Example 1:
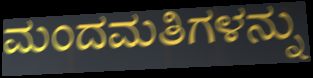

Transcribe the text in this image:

ಮಂದಮತಿಗಳನ್ನು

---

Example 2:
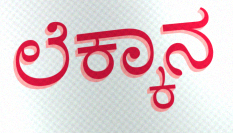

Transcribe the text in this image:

ಲೆಕ್ಕಾನ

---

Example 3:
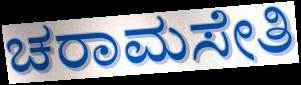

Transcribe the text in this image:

ಚರಾಮಸೇತಿ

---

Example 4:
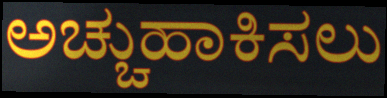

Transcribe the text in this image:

ಅಚ್ಚುಹಾಕಿಸಲು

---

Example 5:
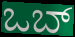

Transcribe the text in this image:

ಒಬ್